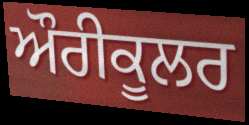
ਔਰੀਕੂਲਰ